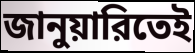
জানুয়ারিতেই